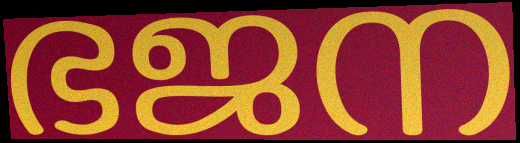
ഭജന